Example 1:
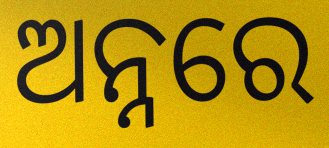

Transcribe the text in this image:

ଅନ୍ନରେ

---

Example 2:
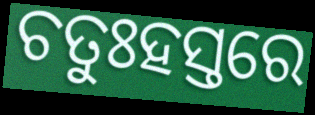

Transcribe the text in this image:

ଚତୁଃହସ୍ତରେ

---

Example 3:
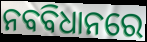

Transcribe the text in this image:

ନବବିଧାନରେ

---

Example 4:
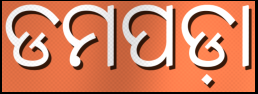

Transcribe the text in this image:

ଡମପଡ଼ା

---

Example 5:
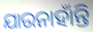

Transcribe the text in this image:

ଯାଉନାହାଁନ୍ତି